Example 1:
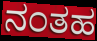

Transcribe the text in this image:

ನಂತಹ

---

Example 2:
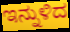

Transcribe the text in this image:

ಇನ್ನುಳಿದ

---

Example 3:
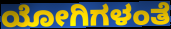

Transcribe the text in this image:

ಯೋಗಿಗಳಂತೆ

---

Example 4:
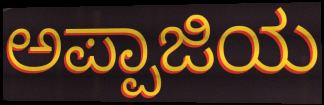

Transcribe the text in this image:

ಅಪ್ಪಾಜಿಯ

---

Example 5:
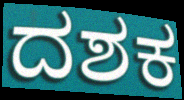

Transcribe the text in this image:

ದಶಕ